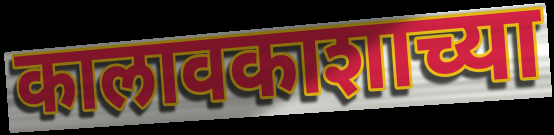
कालावकाशाच्या